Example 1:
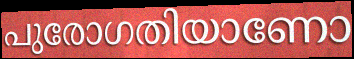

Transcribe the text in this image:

പുരോഗതിയാണോ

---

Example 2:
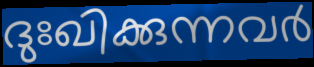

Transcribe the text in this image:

ദുഃഖിക്കുന്നവർ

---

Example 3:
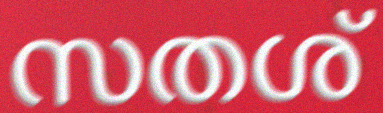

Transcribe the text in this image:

സതശ്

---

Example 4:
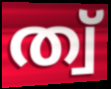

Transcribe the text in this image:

ത്വ്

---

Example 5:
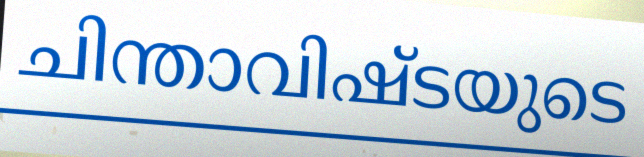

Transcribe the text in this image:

ചിന്താവിഷ്ടയുടെ